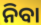
ନିବା